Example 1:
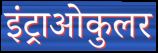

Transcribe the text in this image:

इंट्राओकुलर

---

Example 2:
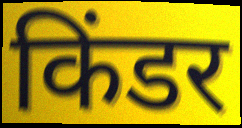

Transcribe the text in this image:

किंडर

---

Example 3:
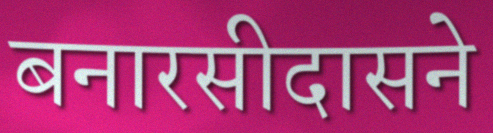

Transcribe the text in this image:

बनारसीदासने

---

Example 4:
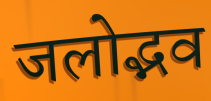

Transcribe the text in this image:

जलोद्भव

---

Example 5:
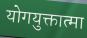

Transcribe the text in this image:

योगयुक्तात्मा